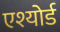
एश्योर्ड